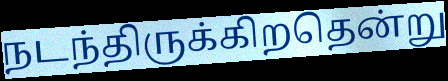
நடந்திருக்கிறதென்று